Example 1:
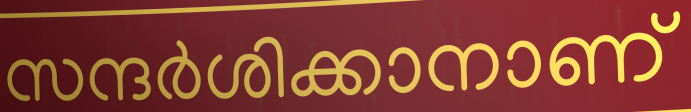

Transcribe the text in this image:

സന്ദർശിക്കാനാണ്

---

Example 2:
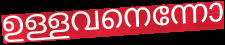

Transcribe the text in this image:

ഉള്ളവനെന്നോ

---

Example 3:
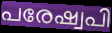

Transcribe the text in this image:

പരേഷ്വപി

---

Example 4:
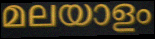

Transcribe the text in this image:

മലയാളം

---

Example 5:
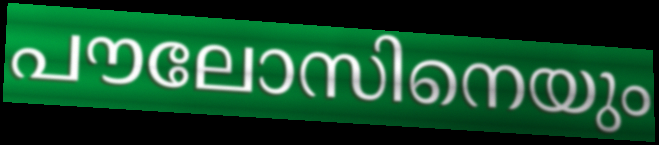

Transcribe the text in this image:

പൗലോസിനെയും